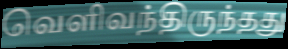
வெளிவந்திருந்தது